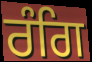
ਰੰਗਿ